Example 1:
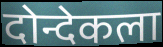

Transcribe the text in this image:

दोन्देकला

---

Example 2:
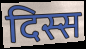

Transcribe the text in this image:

दिस्स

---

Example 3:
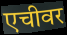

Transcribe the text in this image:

एचीवर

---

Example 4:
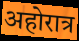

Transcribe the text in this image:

अहोरात्र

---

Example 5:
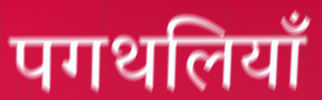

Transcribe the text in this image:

पगथलियाँ